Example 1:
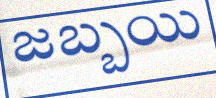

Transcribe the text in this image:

జబ్బయి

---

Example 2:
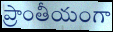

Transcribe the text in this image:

ప్రాంతీయంగా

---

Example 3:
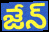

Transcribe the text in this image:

జేన్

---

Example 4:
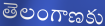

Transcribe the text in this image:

తెలంగాణకు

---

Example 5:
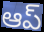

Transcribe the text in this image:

ఆప్